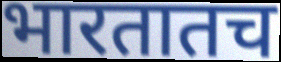
भारतातच